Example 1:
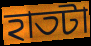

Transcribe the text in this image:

হাতটা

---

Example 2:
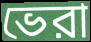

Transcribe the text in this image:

ভেরা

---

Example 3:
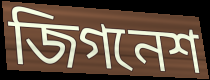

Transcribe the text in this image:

জিগনেশ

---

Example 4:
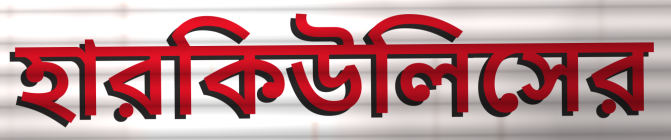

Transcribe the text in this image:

হারকিউলিসের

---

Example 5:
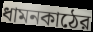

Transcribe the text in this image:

ধামনকাঠের